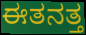
ಈತನತ್ತ